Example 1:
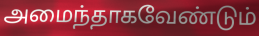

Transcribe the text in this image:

அமைந்தாகவேண்டும்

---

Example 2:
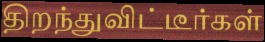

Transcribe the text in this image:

திறந்துவிட்டீர்கள்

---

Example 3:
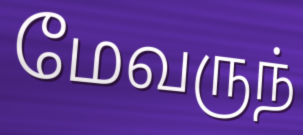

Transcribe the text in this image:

மேவருந்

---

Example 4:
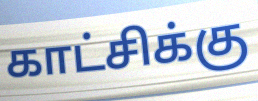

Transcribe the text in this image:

காட்சிக்கு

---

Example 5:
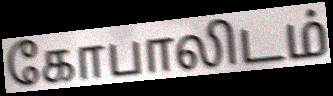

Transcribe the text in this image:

கோபாலிடம்